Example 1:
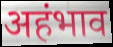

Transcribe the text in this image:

अहंभाव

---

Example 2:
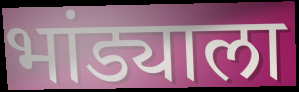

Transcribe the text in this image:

भांड्याला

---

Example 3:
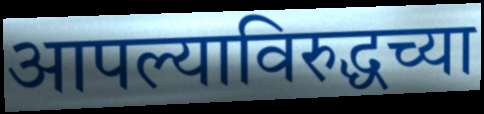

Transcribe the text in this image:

आपल्याविरुद्धच्या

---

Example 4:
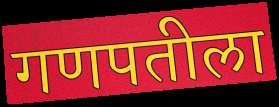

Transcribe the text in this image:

गणपतीला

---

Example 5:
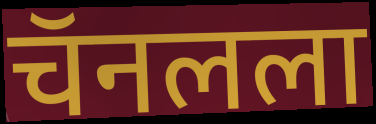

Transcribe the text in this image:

चॅनलला